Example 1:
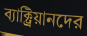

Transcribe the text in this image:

ব্যাক্ট্রিয়ানদের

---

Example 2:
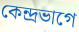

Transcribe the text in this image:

কেন্দ্রভাগে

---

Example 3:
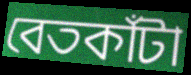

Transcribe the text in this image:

বেতকাঁটা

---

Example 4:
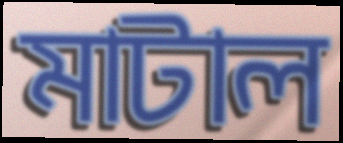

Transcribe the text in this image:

মাটাল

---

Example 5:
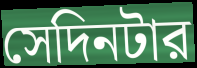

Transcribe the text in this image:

সেদিনটার